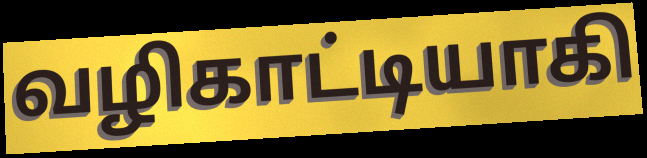
வழிகாட்டியாகி